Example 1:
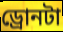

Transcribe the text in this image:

ড্রোনটা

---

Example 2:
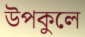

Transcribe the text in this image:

উপকুলে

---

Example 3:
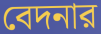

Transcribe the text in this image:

বেদনার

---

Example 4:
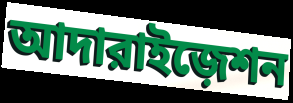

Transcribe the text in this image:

আদারাইজ়েশন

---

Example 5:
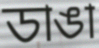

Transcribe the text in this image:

ডাঙা